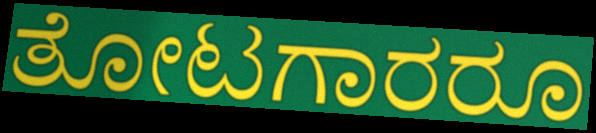
ತೋಟಗಾರರೂ